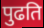
पुढति